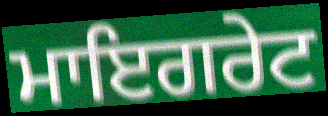
ਮਾਇਗਰੇਟ